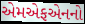
એમએફએનનો